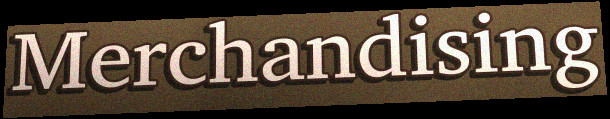
Merchandising